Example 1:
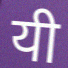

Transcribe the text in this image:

यी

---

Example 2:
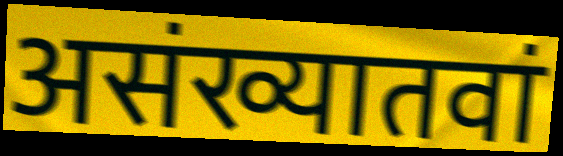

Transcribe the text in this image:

असंख्यातवां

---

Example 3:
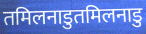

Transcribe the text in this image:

तमिलनाडुतमिलनाडु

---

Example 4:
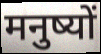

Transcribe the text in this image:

मनुष्यों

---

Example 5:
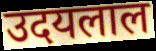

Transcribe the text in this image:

उदयलाल